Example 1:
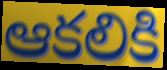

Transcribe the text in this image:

ఆకలికి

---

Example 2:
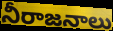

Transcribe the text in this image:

నీరాజనాలు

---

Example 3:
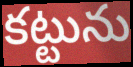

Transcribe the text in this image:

కట్టును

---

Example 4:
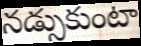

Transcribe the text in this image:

నడ్సుకుంటా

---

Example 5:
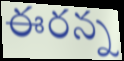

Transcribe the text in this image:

ఈరన్న